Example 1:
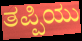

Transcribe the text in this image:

ತಪ್ಪಿಯು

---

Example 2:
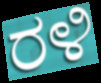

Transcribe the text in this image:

ರಳಿ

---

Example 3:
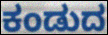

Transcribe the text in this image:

ಕಂಡುದ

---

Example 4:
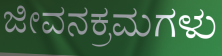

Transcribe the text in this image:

ಜೀವನಕ್ರಮಗಳು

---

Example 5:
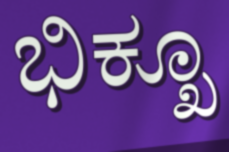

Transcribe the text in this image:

ಭಿಕ್ಖೂ